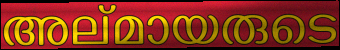
അല്മായരുടെ